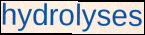
hydrolyses